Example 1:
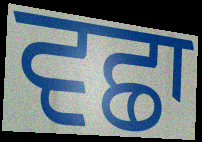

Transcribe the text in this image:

ਵਛਾ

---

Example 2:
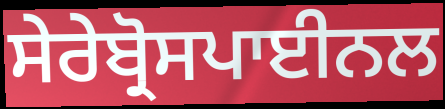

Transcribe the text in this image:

ਸੇਰੇਬ੍ਰੋਸਪਾਈਨਲ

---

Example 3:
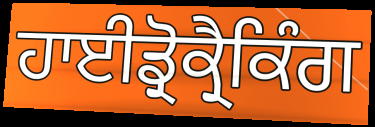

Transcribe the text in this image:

ਹਾਈਡ੍ਰੋਕ੍ਰੈਕਿੰਗ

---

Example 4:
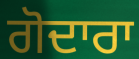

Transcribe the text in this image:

ਗੋਦਾਰਾ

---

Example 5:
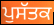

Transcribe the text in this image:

ਪੁਸੱਤਕ